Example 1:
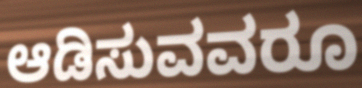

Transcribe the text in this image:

ಆಡಿಸುವವರೂ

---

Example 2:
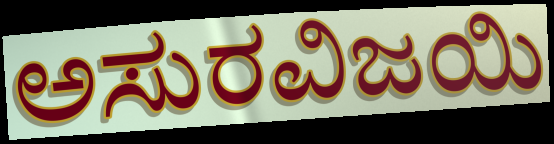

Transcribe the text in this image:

ಅಸುರವಿಜಯಿ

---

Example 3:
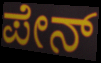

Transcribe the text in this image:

ಪೇನ್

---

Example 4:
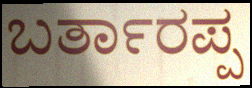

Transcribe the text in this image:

ಬರ್ತಾರಪ್ಪ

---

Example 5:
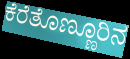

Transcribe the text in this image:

ಕೆರೆತೊಣ್ಣೂರಿನ